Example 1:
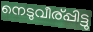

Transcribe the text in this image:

നെടുവീര്പ്പിട്ടു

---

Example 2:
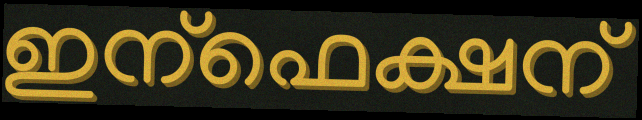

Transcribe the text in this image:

ഇന്ഫെക്ഷന്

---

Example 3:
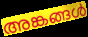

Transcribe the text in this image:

അങ്കങ്ങൾ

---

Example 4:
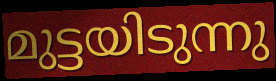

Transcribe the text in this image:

മുട്ടയിടുന്നു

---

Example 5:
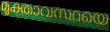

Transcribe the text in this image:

മുക്താവസ്ഥയെ